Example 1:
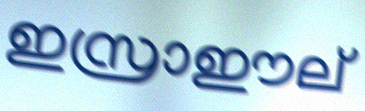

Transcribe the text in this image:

ഇസ്രാഈല്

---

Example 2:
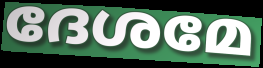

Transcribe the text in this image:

ദേശമേ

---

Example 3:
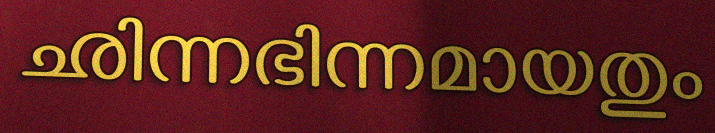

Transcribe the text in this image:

ഛിന്നഭിന്നമായതും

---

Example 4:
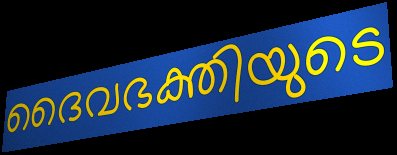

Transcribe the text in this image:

ദൈവഭക്തിയുടെ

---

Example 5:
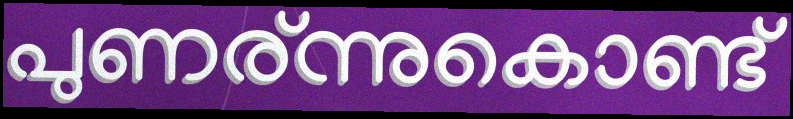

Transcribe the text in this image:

പുണര്ന്നുകൊണ്ട്